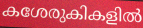
കശേരുകികളിൽ